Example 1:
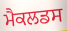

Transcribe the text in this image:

ਮੈਕਲਡਸ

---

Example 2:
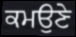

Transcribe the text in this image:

ਕਮਉਣੇ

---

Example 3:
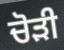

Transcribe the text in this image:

ਚੋੜੀ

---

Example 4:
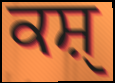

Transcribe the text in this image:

ਕਸ਼ੑ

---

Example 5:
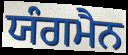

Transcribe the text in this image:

ਯੰਗਮੈਨ